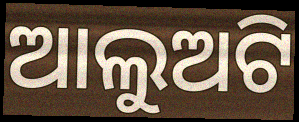
ଆଲୁଅଟି